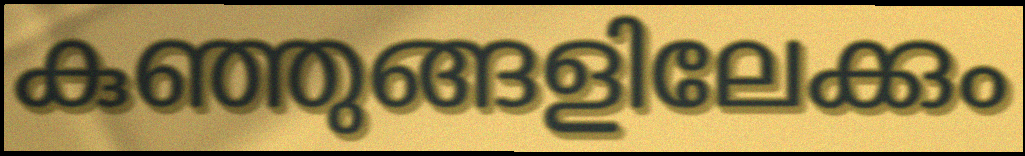
കുഞ്ഞുങ്ങളിലേക്കും